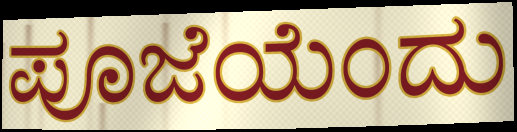
ಪೂಜೆಯೆಂದು